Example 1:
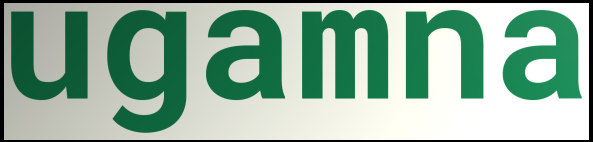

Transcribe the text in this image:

ugamna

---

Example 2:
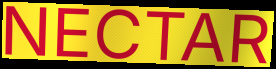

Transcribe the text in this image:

NECTAR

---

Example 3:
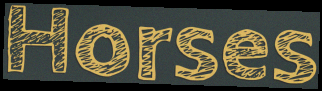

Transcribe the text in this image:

Horses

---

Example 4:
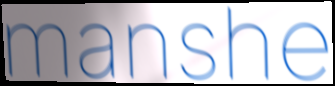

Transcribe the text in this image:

manshe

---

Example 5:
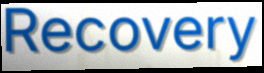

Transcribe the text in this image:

Recovery